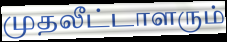
முதலீட்டாளரும்